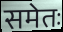
समेतः